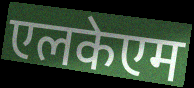
एलकेएम